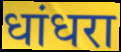
धांधरा